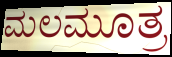
ಮಲಮೂತ್ರ